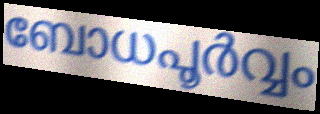
ബോധപൂർവ്വം